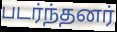
படர்ந்தனர்